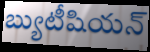
బ్యుటీషియన్